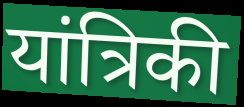
यांत्रिकी